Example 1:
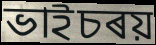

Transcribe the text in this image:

ভাইচৰয়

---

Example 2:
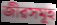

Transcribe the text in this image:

জীৱসমূহ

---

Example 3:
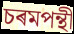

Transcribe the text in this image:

চৰমপন্থী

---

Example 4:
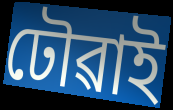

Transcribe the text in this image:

ঢৌৱাই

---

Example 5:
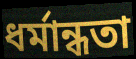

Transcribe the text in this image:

ধৰ্মান্ধতা